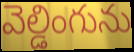
వెల్డింగును